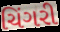
ચિંગરી